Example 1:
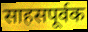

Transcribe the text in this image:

साहसपूर्वक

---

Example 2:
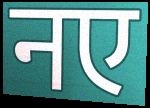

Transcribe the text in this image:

नए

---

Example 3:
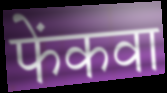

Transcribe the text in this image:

फेंकवा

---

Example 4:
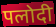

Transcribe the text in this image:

पलोदी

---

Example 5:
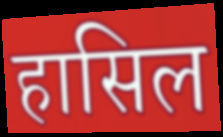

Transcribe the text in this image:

हासिल